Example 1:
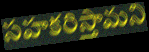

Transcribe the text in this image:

సహకరిస్తామని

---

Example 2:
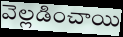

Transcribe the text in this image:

వెల్లడించాయి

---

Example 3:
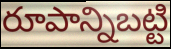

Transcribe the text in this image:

రూపాన్నిబట్టి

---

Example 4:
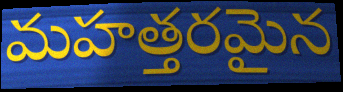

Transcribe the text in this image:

మహత్తరమైన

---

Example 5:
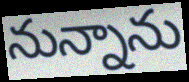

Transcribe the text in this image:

నున్నాను